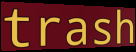
trash